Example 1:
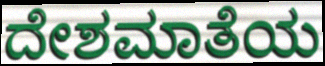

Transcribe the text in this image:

ದೇಶಮಾತೆಯ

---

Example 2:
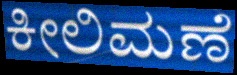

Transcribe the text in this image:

ಕೀಲಿಮಣೆ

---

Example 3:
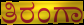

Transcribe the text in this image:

ತಿರಂಗಾ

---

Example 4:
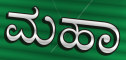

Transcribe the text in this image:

ಮಹಾ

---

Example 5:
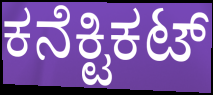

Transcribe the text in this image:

ಕನೆಕ್ಟಿಕಟ್